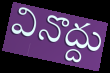
వినొద్దు